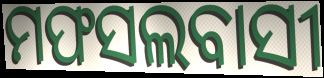
ମଫସଲବାସୀ